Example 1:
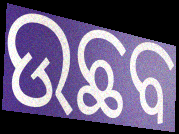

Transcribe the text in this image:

ଉଛବ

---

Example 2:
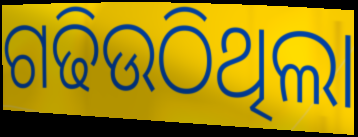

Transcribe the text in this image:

ଗଢିଉଠିଥିଲା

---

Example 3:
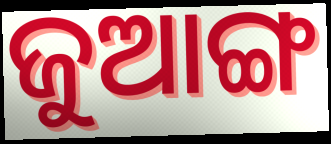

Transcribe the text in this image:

ଜୁଆଙ୍ଗ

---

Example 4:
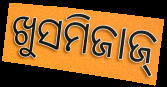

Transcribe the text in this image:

ଖୁସମିଜାଜ୍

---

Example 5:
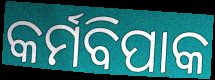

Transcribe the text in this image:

କର୍ମବିପାକ